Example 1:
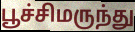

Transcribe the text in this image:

பூச்சிமருந்து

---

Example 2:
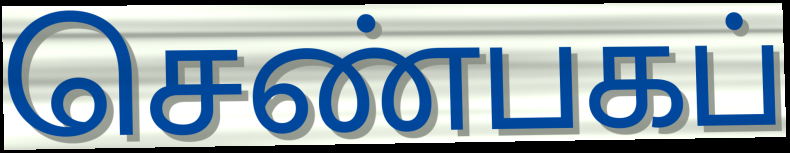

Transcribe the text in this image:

செண்பகப்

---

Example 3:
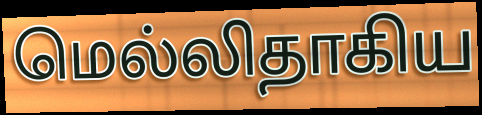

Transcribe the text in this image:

மெல்லிதாகிய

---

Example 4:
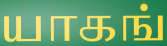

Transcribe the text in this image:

யாகங்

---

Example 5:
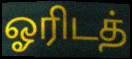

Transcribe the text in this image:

ஓரிடத்